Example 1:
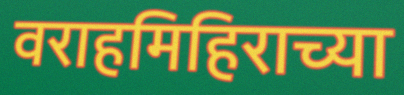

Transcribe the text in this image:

वराहमिहिराच्या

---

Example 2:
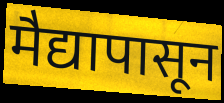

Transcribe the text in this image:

मैद्यापासून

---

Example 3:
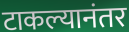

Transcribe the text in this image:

टाकल्यानंतर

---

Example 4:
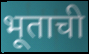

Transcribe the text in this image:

भूताची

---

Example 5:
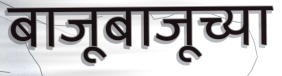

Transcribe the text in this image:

बाजूबाजूच्या